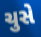
ચુસે